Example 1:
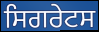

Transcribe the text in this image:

ਸਿਗਰੇਟਸ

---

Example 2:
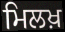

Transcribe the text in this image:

ਮਿਲਖ਼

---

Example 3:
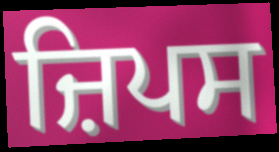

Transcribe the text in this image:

ਜ਼ਿਪਸ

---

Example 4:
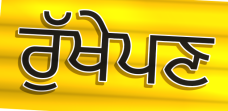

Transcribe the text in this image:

ਰੁੱਖੇਪਣ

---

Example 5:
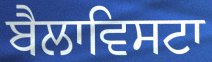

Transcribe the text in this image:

ਬੈਲਾਵਿਸਟਾ